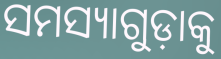
ସମସ୍ୟାଗୁଡ଼ାକୁ